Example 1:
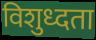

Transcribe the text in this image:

विशुध्दता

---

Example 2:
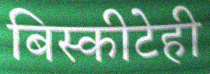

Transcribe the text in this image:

बिस्कीटेही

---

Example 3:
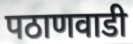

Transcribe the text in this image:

पठाणवाडी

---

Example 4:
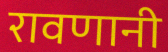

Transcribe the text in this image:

रावणानी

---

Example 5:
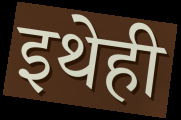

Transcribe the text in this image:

इथेही